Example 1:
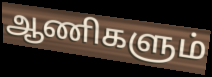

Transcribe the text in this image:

ஆணிகளும்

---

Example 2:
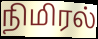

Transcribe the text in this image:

நிமிரல்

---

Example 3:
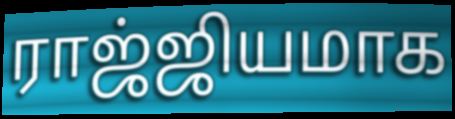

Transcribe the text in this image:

ராஜ்ஜியமாக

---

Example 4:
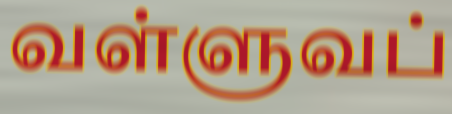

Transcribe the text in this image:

வள்ளுவப்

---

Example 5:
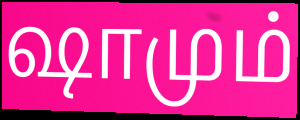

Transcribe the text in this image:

ஷாமும்